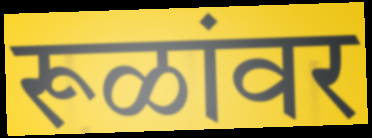
रूळांवर